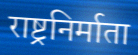
राष्ट्रनिर्माता